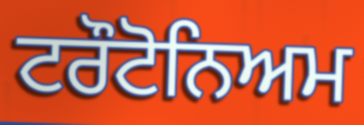
ਟਰੌਟੋਨਿਅਮ